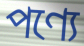
পণ্যে